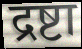
द्रष्टा